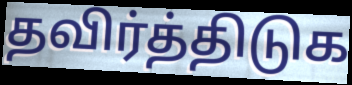
தவிர்த்திடுக